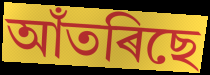
আঁতৰিছে